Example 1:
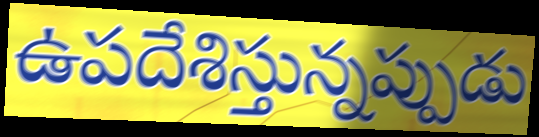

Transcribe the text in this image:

ఉపదేశిస్తున్నప్పుడు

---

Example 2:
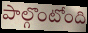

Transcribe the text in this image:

పాల్గొంటోంది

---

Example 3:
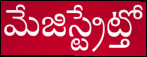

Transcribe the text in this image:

మేజిస్ట్రేట్తో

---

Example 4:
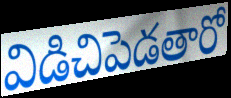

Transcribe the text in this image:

విడిచిపెడతారో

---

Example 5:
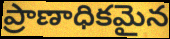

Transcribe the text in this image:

ప్రాణాధికమైన